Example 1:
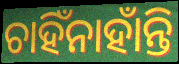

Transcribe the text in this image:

ଚାହିଁନାହାଁନ୍ତି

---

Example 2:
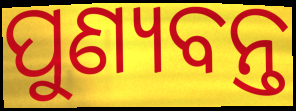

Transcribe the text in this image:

ପୁଣ୍ୟବନ୍ତ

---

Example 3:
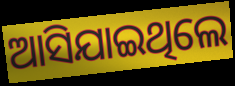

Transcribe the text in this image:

ଆସିଯାଇଥିଲେ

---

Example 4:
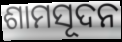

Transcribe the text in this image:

ଶାମସୂଦନ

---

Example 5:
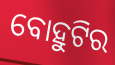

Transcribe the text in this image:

ବୋହୁଟିର